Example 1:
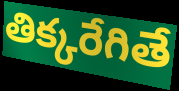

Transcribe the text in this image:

తిక్కరేగితే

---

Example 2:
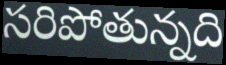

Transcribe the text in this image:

సరిపోతున్నది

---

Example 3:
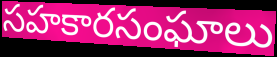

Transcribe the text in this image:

సహకారసంఘాలు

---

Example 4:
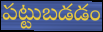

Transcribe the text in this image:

పట్టుబడడం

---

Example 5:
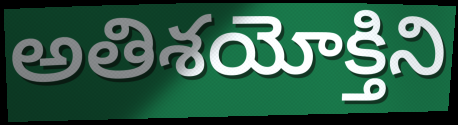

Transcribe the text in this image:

అతిశయోక్తిని